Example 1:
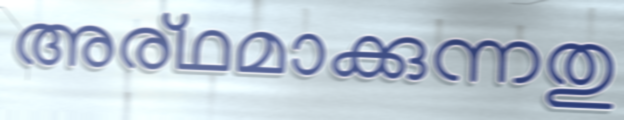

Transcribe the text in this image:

അര്ഥമാക്കുന്നതു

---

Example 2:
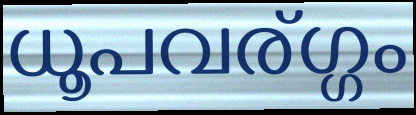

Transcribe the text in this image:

ധൂപവര്ഗ്ഗം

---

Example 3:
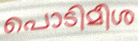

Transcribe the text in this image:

പൊടിമീശ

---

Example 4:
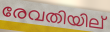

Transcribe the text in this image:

രേവതിയില്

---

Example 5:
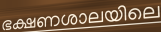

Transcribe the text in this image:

ഭക്ഷണശാലയിലെ